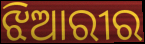
ଝିଆରୀର